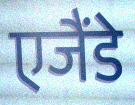
एजैंडे